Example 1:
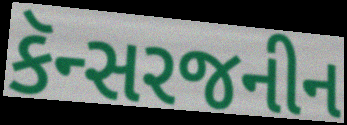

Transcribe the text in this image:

કૅન્સરજનીન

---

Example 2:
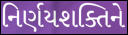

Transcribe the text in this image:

નિર્ણયશક્તિને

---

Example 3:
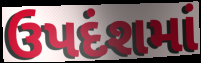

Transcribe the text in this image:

ઉપદંશમાં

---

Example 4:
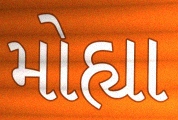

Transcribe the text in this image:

મોહ્યા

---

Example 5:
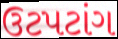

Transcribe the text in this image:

ઉટપટાંગ